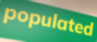
populated